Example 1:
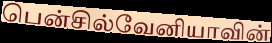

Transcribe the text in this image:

பென்சில்வேனியாவின்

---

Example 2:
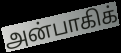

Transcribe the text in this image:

அன்பாகிக்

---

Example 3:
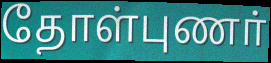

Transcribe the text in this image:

தோள்புணர்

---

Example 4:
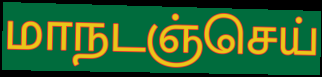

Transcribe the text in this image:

மாநடஞ்செய்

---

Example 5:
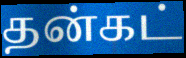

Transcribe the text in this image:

தன்கட்